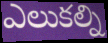
ఎలుకల్ని